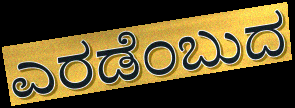
ಎರಡೆಂಬುದ